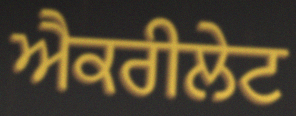
ਐਕਰੀਲੇਟ